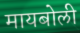
मायबोली